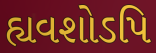
હ્યવશોઽપિ